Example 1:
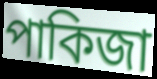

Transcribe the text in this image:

পাকিজা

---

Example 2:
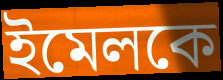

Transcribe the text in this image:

ইমেলকে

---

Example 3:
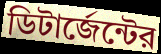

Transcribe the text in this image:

ডিটার্জেন্টের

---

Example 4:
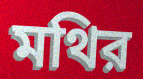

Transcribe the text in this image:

মথির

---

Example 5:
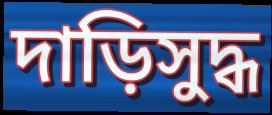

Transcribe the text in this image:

দাড়িসুদ্ধ